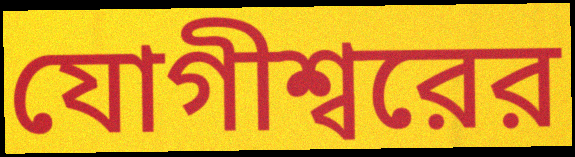
যোগীশ্বরের